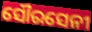
ସୌରସେନୀ